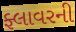
ફ્લાવરની